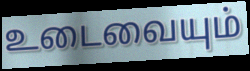
உடைவையும்